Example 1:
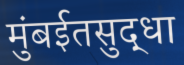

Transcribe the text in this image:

मुंबईतसुद्धा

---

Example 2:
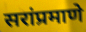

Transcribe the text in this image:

सरांप्रमाणे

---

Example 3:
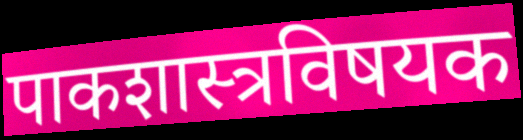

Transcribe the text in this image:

पाकशास्त्रविषयक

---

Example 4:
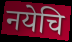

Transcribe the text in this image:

नयेचि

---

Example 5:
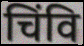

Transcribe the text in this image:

चिंवि